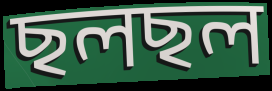
ছলছল